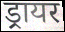
ड्रायर